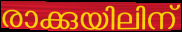
രാക്കുയിലിന്